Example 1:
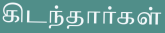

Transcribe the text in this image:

கிடந்தார்கள்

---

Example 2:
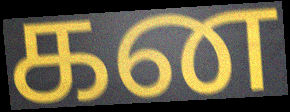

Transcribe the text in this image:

கன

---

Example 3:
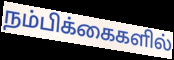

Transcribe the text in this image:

நம்பிக்கைகளில்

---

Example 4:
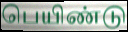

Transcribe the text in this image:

பெயிண்டு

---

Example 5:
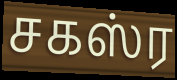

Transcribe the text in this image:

சகஸ்ர